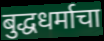
बुद्धधर्माचा